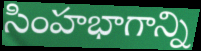
సింహభాగాన్ని